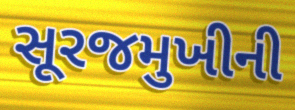
સૂરજમુખીની